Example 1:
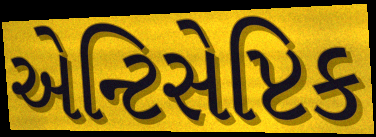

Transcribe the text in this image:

એન્ટિસેપ્ટિક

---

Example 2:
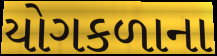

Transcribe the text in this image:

યોગકળાના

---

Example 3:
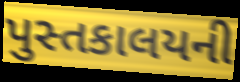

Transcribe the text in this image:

પુસ્તકાલયની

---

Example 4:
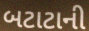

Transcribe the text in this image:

બટાટાની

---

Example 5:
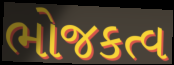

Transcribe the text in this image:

ભોજકત્વ